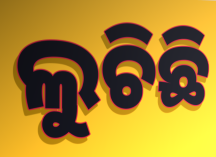
ଲୁଚିଛି